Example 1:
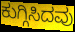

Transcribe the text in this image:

ಕುಗ್ಗಿಸಿದವು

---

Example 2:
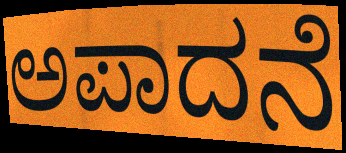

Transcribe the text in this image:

ಅಪಾದನೆ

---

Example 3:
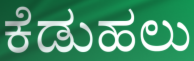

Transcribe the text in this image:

ಕೆಡುಹಲು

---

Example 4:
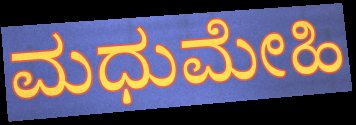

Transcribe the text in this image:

ಮಧುಮೇಹಿ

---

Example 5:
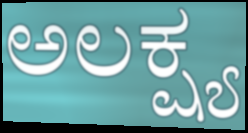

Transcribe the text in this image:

ಅಲಕ್ಷ್ಯ